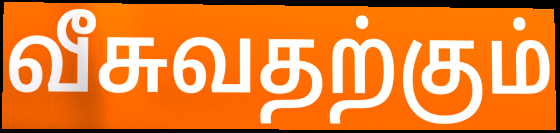
வீசுவதற்கும்